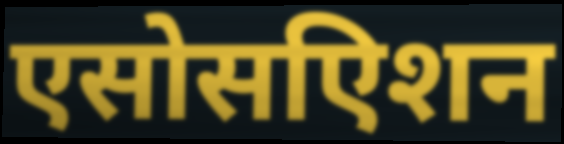
एसोसएिशन